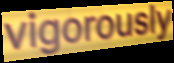
vigorously